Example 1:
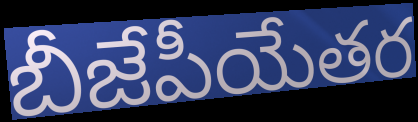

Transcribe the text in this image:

బీజేపీయేతర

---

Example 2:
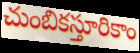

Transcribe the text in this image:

చుంబికస్తూరికాం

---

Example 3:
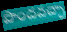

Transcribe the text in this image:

పొందవచ్చా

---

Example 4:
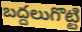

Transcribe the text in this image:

బద్దలుగొట్టి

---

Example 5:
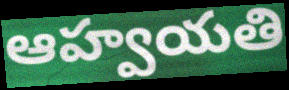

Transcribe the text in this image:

ఆహ్వయతి